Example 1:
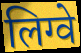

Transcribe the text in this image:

लिग्वे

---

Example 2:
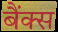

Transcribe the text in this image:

बैंक्‍स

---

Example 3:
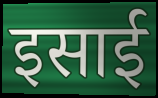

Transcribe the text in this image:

इसाई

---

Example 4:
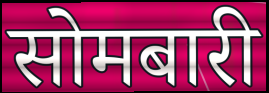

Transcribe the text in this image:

सोमबारी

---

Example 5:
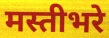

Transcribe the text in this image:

मस्तीभरे